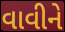
વાવીને